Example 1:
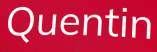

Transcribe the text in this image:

Quentin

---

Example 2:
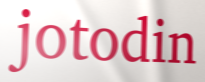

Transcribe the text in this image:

jotodin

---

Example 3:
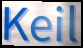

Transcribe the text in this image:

Keil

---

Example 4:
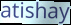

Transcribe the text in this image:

atishay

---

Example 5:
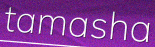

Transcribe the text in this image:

tamasha